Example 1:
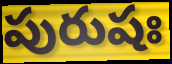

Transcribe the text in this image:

పురుషః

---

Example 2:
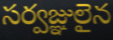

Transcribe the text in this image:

సర్వజ్ఞులైన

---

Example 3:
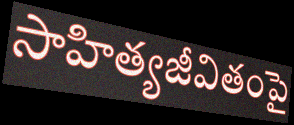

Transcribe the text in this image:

సాహిత్యజీవితంపై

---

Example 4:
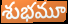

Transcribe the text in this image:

శుభమూ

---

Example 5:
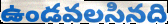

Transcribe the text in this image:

ఉండవలసినది